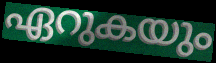
ഏറുകയും